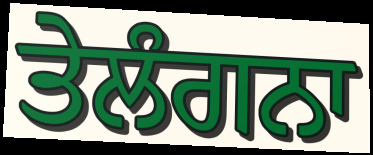
ਤੇਲੰਗਨਾ